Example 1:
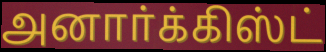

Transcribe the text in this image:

அனார்க்கிஸ்ட்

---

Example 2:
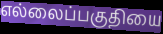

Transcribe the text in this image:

எல்லைப்பகுதியை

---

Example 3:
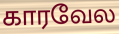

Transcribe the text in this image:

காரவேல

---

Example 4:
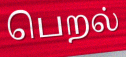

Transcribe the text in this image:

பெறல்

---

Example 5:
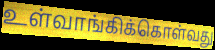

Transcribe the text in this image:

உள்வாங்கிக்கொள்வது